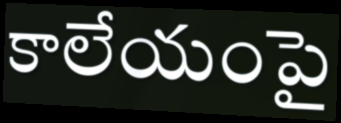
కాలేయంపై